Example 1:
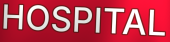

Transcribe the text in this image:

HOSPITAL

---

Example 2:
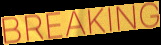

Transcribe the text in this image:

BREAKING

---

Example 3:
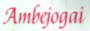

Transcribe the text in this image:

Ambejogai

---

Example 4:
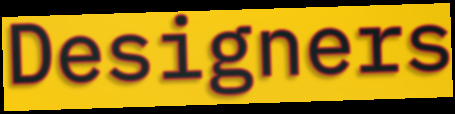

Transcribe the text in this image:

Designers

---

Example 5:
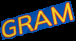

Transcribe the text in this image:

GRAM